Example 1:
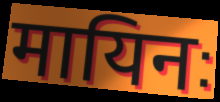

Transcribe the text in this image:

मायिनः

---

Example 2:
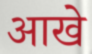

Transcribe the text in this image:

आखे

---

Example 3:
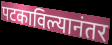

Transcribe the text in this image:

पटकाविल्यानंतर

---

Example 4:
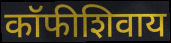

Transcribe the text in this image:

कॉफीशिवाय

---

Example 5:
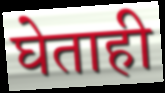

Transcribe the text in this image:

घेताही